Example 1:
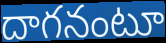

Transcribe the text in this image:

దాగనంటూ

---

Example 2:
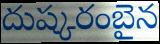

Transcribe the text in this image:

దుష్కరంబైన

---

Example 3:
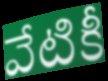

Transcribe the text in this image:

వేటికీ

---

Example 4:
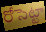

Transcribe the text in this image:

రోసెట్టా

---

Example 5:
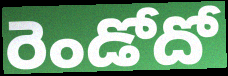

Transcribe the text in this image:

రెండోదో